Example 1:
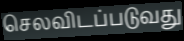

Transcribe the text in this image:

செலவிடப்படுவது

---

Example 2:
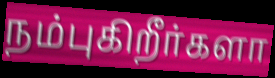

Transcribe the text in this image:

நம்புகிறீர்களா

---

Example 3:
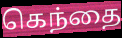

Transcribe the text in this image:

கெந்தை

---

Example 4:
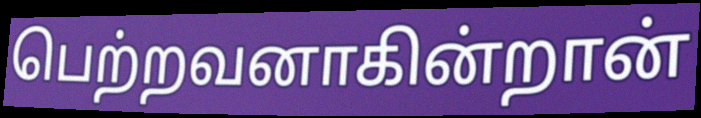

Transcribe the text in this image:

பெற்றவனாகின்றான்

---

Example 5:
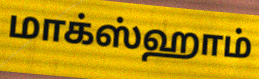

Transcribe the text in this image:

மாக்ஸ்ஹாம்